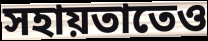
সহায়তাতেও